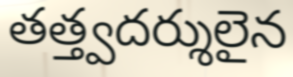
తత్త్వదర్శులైన